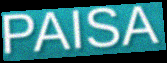
PAISA